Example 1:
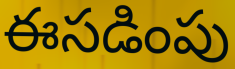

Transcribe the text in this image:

ఈసడింపు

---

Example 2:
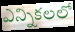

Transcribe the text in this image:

ఎన్నికలలో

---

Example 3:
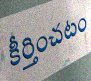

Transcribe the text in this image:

కీర్తించటం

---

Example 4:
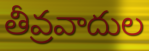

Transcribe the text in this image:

తీవ్రవాదుల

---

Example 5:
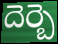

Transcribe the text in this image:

దెర్బె